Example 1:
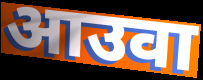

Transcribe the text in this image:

आउवा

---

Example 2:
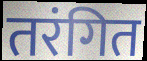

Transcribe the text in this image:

तरंगित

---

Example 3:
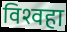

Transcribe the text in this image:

विश्वहा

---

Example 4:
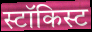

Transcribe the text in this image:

स्टॉकिस्ट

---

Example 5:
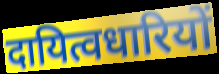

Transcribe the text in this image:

दायित्वधारियों